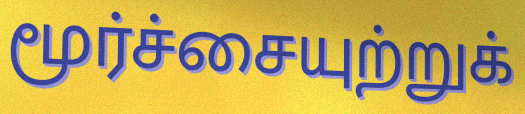
மூர்ச்சையுற்றுக்